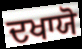
ਦਖਾਯੋ